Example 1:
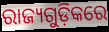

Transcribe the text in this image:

ରାଜ୍ୟଗୁଡ଼ିକରେ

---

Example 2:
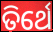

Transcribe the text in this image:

ତିର୍ଥେ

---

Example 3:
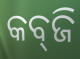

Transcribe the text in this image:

କବ୍‍ଜି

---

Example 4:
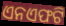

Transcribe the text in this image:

ଏନଏଫଟି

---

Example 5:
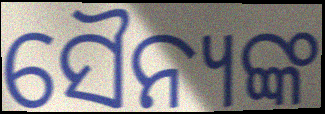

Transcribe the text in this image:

ସୈନ୍ୟଙ୍କ